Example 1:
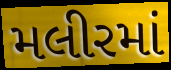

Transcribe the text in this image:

મલીરમાં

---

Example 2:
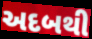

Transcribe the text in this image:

અદબથી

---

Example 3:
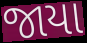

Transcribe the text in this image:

જાયા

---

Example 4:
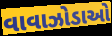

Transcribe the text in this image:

વાવાઝોડાઓ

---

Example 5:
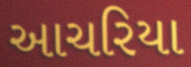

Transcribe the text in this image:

આચરિયા